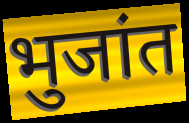
भुजांत